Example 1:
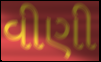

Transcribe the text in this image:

વીણી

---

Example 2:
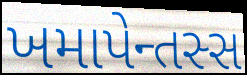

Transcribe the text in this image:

ખમાપેન્તસ્સ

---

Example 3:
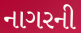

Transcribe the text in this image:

નાગરની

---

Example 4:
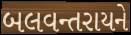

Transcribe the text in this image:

બલવન્તરાયને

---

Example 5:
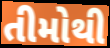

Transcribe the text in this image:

તીમોથી